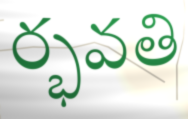
ర్భవతి